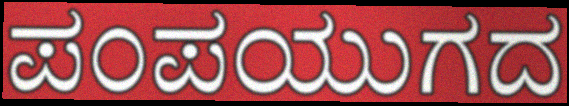
ಪಂಪಯುಗದ